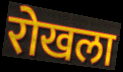
रोखला